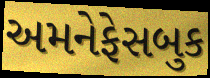
અમનેફેસબુક